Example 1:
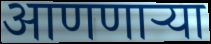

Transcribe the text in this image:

आणणाऱ्या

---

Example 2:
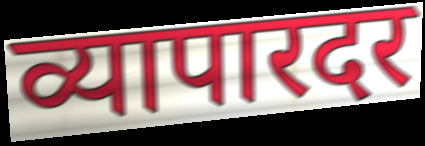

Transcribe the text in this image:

व्यापारदर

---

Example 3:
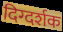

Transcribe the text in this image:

दिग्‍दर्शक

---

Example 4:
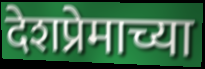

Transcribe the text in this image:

देशप्रेमाच्या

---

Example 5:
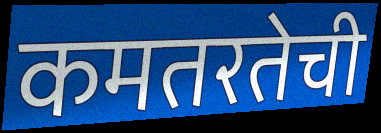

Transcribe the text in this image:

कमतरतेची